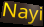
Nayi